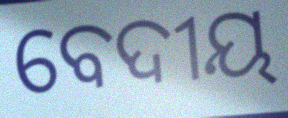
ବେଦୀୟ